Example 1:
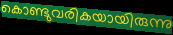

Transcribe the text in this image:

കൊണ്ടുവരികയായിരുന്നു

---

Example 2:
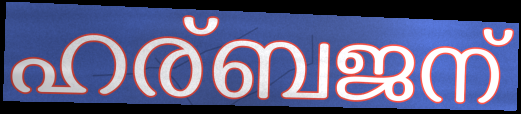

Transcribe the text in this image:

ഹര്ബജന്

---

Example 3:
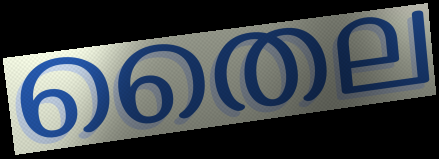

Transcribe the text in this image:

തൈല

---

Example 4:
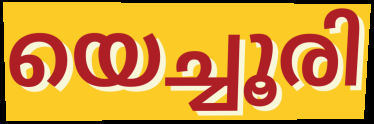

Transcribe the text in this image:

യെച്ചൂരി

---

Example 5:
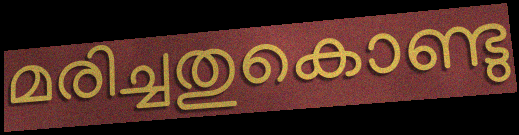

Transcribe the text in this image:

മരിച്ചതുകൊണ്ടു